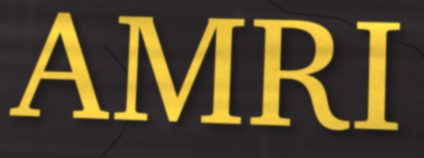
AMRI